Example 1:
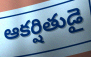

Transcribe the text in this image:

ఆకర్షితుడై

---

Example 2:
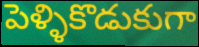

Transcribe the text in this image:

పెళ్ళికొడుకుగా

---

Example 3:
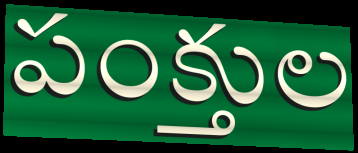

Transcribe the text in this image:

పంక్తుల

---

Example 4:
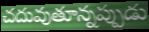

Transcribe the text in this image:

చదువుతూన్నప్పుడు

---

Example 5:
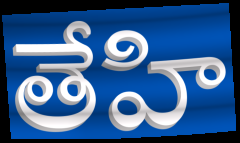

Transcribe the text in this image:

తేహి